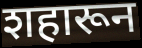
शहारून